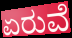
ಏರುವೆ